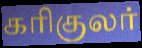
கரிகுலர்